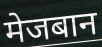
मेजबान